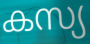
കസ്യ